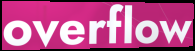
overflow